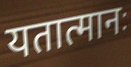
यतात्मानः